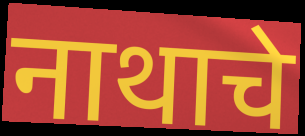
नाथाचे